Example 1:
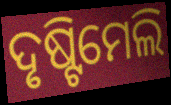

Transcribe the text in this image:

ଦୃଷ୍ଟିମେଲି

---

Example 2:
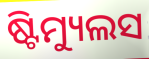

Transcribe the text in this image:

ଷ୍ଟିମ୍ୟୁଲସ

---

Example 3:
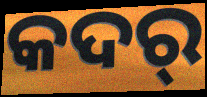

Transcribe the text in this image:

କଦର୍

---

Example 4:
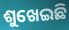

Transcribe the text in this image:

ଶୁଖେଇଛି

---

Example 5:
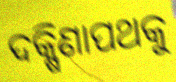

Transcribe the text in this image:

ଦକ୍ଷିଣାପଥକୁ